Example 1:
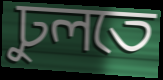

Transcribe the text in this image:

ঢুলতে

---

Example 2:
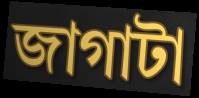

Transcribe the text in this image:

জাগাটা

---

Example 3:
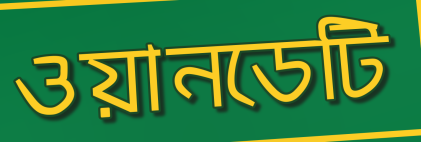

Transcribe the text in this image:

ওয়ানডেটি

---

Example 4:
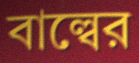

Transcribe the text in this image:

বাল্বের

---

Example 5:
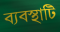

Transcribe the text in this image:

ব্যবস্থাটি